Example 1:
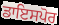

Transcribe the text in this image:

ਡਾਇਸਪੋਰ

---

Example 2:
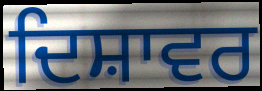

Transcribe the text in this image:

ਦਿਸ਼ਾਵਰ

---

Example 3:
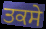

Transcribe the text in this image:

ਤਕਸੇ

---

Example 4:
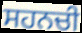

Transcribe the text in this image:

ਸਹਨਚੀ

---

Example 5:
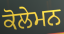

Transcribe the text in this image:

ਕੋਲੇਮਨ